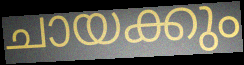
ചായക്കും